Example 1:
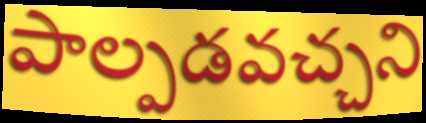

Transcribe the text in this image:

పాల్పడవచ్చని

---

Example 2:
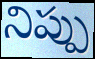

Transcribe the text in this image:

నిప్పు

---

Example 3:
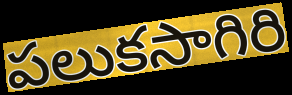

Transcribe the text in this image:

పలుకసాగిరి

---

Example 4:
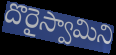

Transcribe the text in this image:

దొరైస్వామిని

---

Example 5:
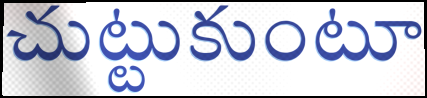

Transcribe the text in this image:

చుట్టుకుంటూ